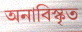
অনাবিস্কৃত